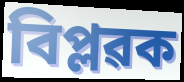
বিপ্লৱক